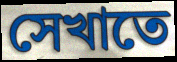
সেখাতে